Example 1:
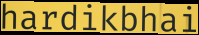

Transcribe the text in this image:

hardikbhai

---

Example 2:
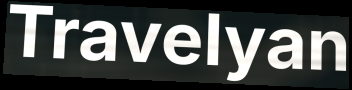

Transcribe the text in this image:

Travelyan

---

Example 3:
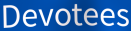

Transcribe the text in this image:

Devotees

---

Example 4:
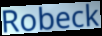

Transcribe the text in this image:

Robeck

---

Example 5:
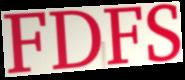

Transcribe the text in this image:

FDFS